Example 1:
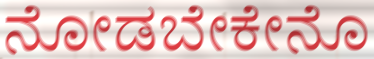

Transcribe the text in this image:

ನೋಡಬೇಕೇನೊ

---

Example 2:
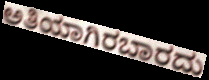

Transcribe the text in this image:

ಅತಿಯಾಗಿರಬಾರದು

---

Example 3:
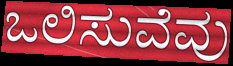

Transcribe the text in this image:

ಒಲಿಸುವೆವು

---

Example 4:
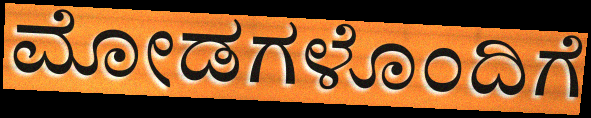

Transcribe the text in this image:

ಮೋಡಗಳೊಂದಿಗೆ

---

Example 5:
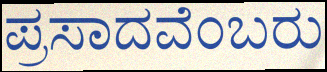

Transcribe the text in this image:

ಪ್ರಸಾದವೆಂಬರು